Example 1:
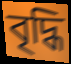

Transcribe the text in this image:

বৃদ্ধি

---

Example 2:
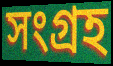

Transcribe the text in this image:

সংগ্রহ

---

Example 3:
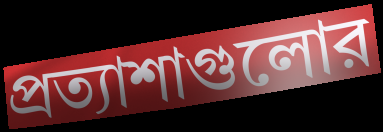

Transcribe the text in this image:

প্রত্যাশাগুলোর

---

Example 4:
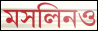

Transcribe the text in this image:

মসলিনও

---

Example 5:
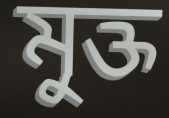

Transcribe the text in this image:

মুক্ত